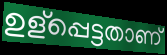
ഉള്പ്പെട്ടതാണ്